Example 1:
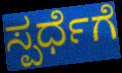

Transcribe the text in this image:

ಸ್ಪರ್ಧೆಗೆ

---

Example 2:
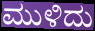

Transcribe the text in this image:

ಮುಳಿದು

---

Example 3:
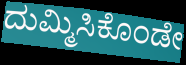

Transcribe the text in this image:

ದುಮ್ಮಿಸಿಕೊಂಡೇ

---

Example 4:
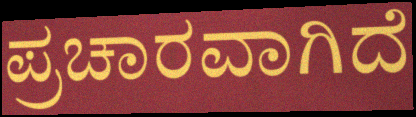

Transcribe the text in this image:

ಪ್ರಚಾರವಾಗಿದೆ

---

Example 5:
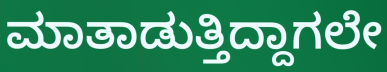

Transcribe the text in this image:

ಮಾತಾಡುತ್ತಿದ್ದಾಗಲೇ